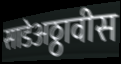
साडेअठ्ठावीस